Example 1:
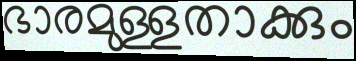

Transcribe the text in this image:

ഭാരമുള്ളതാക്കും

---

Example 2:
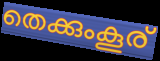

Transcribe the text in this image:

തെക്കുംകൂര്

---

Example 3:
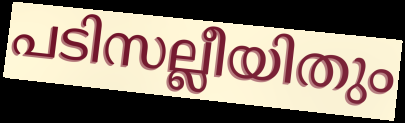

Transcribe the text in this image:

പടിസല്ലീയിതും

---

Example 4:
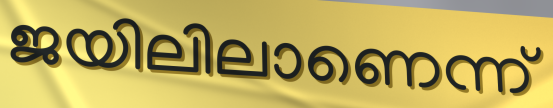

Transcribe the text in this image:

ജയിലിലാണെന്ന്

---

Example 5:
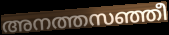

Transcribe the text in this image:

അനത്തസഞ്ഞീ